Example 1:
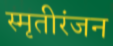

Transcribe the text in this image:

स्मृतीरंजन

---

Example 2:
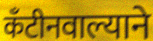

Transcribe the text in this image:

कँटीनवाल्याने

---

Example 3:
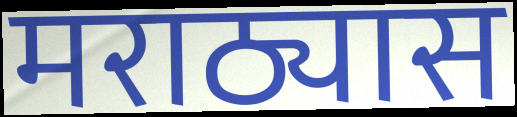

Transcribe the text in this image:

मराठ्यास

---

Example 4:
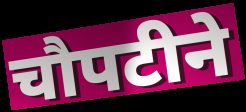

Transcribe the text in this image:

चौपटीने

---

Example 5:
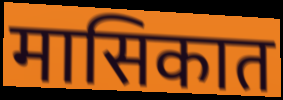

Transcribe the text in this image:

मासिकात